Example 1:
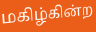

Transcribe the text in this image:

மகிழ்கின்ற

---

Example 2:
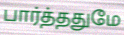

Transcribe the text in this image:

பார்த்ததுமே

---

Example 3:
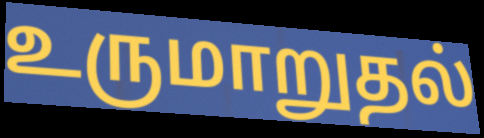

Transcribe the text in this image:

உருமாறுதல்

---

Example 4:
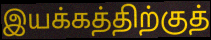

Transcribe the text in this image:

இயக்கத்திற்குத்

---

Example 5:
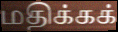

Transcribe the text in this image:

மதிக்கக்